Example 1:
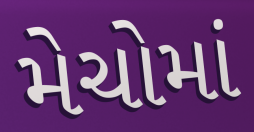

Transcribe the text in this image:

મેચોમાં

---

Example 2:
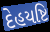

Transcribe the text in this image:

દેહયષ્ટિ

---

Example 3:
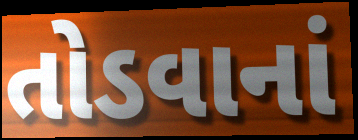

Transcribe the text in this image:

તોડવાનાં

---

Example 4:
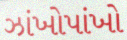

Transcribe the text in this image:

ઝાંખોપાંખો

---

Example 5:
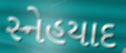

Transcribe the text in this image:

સ્નેહયાદ